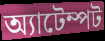
অ্যাটেম্পট